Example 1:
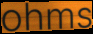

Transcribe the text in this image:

ohms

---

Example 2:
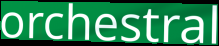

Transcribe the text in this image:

orchestral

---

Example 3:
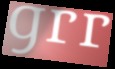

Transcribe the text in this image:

grr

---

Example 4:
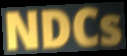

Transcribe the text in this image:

NDCs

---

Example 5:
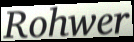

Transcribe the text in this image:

Rohwer